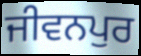
ਜੀਵਨਪੁਰ